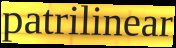
patrilinear